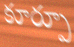
కూర్పూ